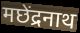
मछेंद्रनाथ